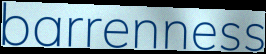
barrenness